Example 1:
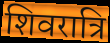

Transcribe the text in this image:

शिवरात्रि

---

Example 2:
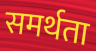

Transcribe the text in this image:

समर्थता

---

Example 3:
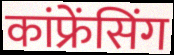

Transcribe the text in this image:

कांफ्रेंसिंग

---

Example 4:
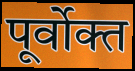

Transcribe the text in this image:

पूर्वोक्‍त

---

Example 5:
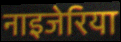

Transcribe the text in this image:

नाइजेरिया